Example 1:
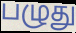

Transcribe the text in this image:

பழுது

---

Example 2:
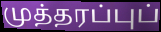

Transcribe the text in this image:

முத்தரப்புப்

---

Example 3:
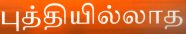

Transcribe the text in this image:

புத்தியில்லாத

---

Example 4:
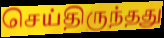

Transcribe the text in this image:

செய்திருந்தது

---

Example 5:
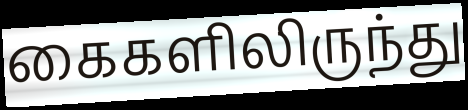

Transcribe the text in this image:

கைகளிலிருந்து